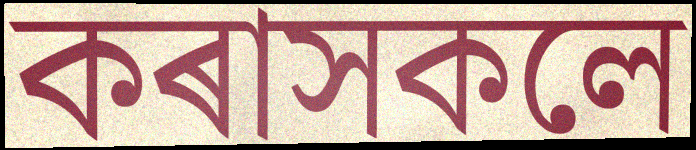
কৰাসকলে